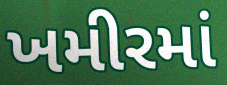
ખમીરમાં